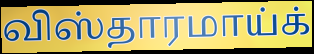
விஸ்தாரமாய்க்